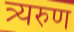
त्र्यरुण